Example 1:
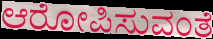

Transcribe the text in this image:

ಆರೋಪಿಸುವಂತೆ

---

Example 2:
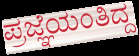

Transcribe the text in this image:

ಪ್ರಜ್ಞೆಯಂತಿದ್ದ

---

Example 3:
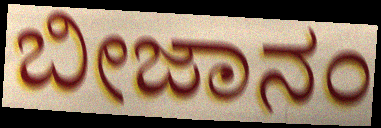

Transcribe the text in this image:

ಬೀಜಾನಂ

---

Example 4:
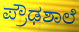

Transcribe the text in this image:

ಪ್ರೌಢಶಾಲೆ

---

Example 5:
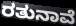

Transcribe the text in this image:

ರತುನಾವೆ